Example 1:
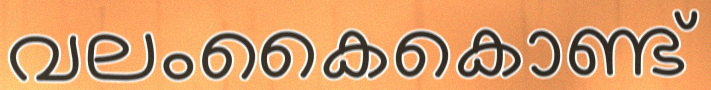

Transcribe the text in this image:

വലംകൈകൊണ്ട്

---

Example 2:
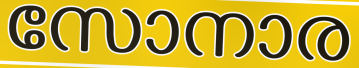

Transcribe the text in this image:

സോനാര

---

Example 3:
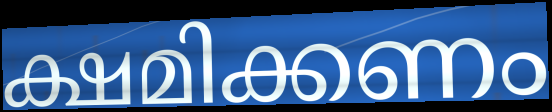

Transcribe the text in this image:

ക്ഷമിക്കണം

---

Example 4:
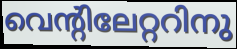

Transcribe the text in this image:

വെന്റിലേറ്ററിനു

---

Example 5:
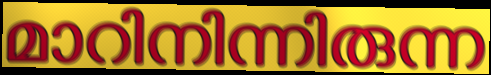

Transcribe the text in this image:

മാറിനിന്നിരുന്ന